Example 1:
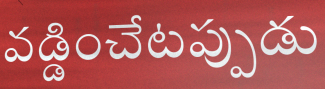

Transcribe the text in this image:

వడ్డించేటప్పుడు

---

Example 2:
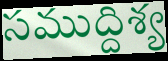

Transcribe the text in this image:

సముద్దిశ్య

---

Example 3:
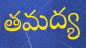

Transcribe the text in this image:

తమద్య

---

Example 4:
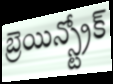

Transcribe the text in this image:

బ్రెయిన్స్ట్రోక్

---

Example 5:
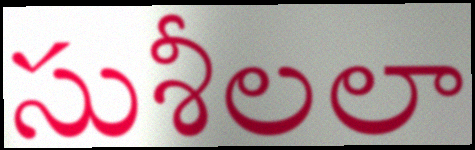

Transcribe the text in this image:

సుశీలలా